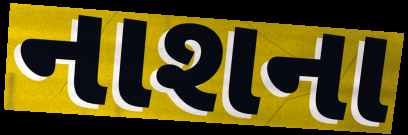
નાશના